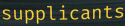
supplicants